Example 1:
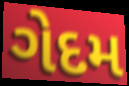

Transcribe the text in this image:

ગેદમ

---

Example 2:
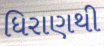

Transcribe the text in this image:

ધિરાણથી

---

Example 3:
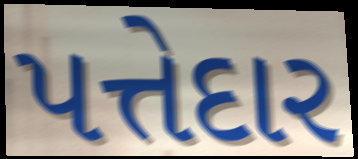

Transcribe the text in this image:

પત્તેદાર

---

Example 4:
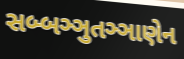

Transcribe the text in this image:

સબ્બઞ્ઞુતઞ્ઞાણેન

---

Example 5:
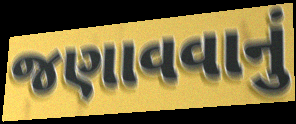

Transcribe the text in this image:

જણાવવાનું